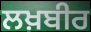
ਲਖ਼ਬੀਰ